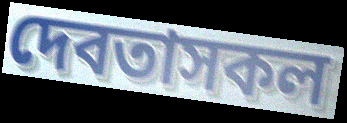
দেবতাসকল